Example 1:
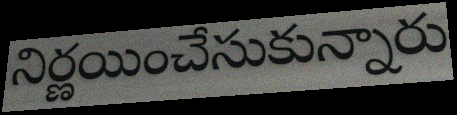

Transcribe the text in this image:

నిర్ణయించేసుకున్నారు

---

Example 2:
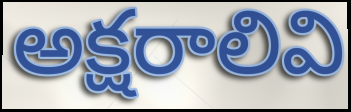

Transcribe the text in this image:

అక్షరాలివి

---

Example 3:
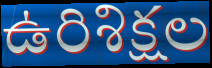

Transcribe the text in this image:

ఉరిశిక్షల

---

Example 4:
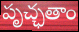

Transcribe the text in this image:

పృచ్ఛతాం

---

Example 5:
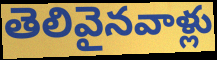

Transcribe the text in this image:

తెలివైనవాళ్లు